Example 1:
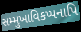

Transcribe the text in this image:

સમ્મુખાવિકપ્પનાપિ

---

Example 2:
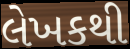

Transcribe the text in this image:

લેખકથી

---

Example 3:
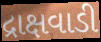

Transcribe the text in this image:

દ્રાક્ષવાડી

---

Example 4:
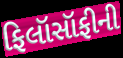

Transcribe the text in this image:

ફિલૉસૉફીની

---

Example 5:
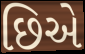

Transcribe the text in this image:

છિએ